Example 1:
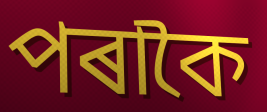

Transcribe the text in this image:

পৰাকৈ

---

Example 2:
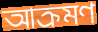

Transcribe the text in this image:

আক্ৰমণ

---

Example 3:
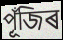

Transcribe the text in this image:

পূঁজিৰ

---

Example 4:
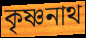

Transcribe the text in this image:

কৃষ্ণনাথ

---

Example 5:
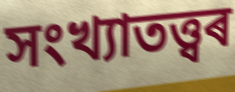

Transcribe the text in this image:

সংখ্যাতত্ত্বৰ